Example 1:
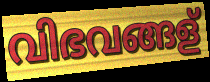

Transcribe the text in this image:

വിഭവങ്ങള്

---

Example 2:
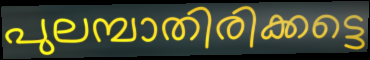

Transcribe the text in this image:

പുലമ്പാതിരിക്കട്ടെ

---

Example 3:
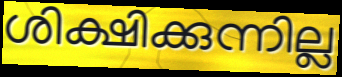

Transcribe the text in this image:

ശിക്ഷിക്കുന്നില്ല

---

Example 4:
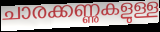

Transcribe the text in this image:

ചാരക്കണ്ണുകളുള്ള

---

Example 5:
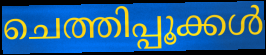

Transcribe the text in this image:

ചെത്തിപ്പൂക്കൾ